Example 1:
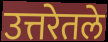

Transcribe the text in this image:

उत्तरेतले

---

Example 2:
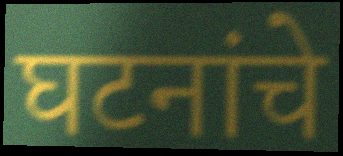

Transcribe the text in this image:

घटनांचे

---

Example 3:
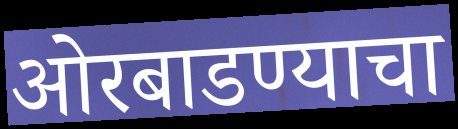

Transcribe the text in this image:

ओरबाडण्याचा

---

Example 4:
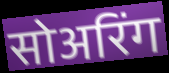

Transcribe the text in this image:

सोअरिंग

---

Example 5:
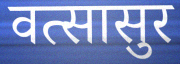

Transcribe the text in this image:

वत्सासुर